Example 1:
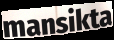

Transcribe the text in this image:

mansikta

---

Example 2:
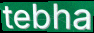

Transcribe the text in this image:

tebha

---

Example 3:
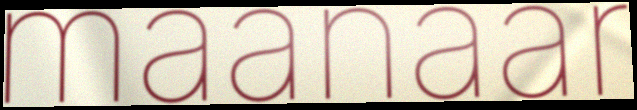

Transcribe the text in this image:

maanaar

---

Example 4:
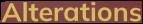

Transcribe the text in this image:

Alterations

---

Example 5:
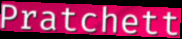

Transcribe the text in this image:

Pratchett